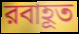
রবাহূত